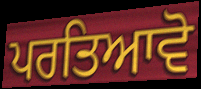
ਪਰਤਿਆਵੋ